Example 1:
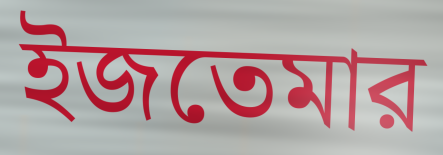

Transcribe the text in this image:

ইজতেমার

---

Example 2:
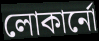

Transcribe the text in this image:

লোকার্নো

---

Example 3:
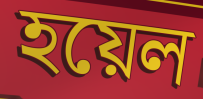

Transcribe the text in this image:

হয়েল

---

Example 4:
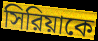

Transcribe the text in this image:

সিরিয়াকে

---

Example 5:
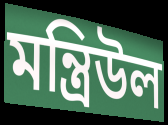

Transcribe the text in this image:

মন্ত্রিউল